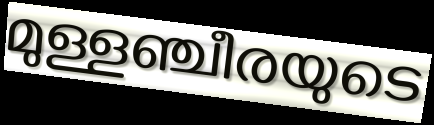
മുള്ളഞ്ചീരയുടെ